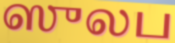
ஸுலப